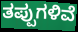
ತಪ್ಪುಗಳಿವೆ